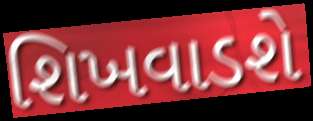
શિખવાડશે